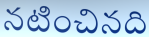
నటించినది